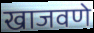
खाजवणे